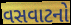
વસવાટનો